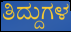
ತಿದ್ದುಗಳ